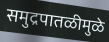
समुद्रपातळीमुळे